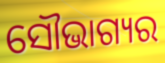
ସୌଭାଗ୍ୟର